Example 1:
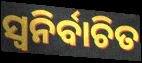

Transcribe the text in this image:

ସ୍ବନିର୍ବାଚିତ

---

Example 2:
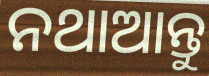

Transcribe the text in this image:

ନଥାଆନ୍ତୁ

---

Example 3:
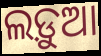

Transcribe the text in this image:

ଲଡ଼ୁଆ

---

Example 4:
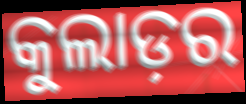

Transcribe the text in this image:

କୁଲାଡ଼ର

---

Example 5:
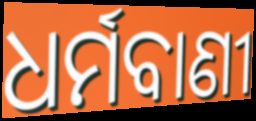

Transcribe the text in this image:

ଧର୍ମବାଣୀ